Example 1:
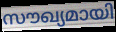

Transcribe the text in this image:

സൗഖ്യമായി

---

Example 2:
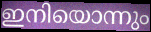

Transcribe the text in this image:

ഇനിയൊന്നും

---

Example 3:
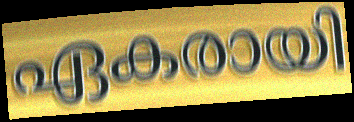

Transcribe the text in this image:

ഏകരായി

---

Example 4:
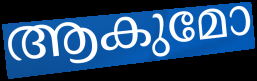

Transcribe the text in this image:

ആകുമോ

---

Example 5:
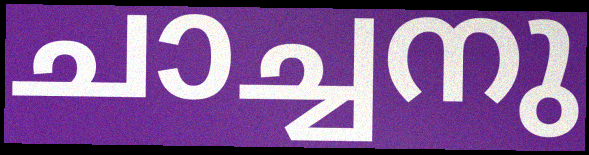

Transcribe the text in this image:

ചാച്ചനു